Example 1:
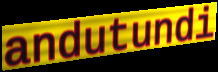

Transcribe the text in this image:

andutundi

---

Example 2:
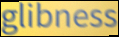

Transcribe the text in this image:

glibness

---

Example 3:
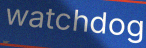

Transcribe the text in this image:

watchdog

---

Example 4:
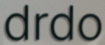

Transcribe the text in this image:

drdo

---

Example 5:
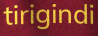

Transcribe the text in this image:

tirigindi